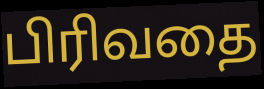
பிரிவதை